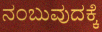
ನಂಬುವುದಕ್ಕೆ